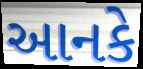
આનકે